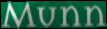
Munn